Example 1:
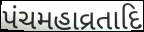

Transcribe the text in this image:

પંચમહાવ્રતાદિ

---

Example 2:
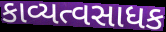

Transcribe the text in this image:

કાવ્યત્વસાધક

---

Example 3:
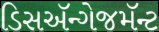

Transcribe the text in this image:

ડિસઍન્ગેજમૅન્ટ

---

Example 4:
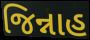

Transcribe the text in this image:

જિન્નાહ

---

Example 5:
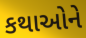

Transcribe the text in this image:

કથાઓને